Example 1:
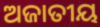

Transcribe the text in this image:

ଅଜାତୀୟ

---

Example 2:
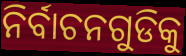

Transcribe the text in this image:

ନିର୍ବାଚନଗୁଡିକୁ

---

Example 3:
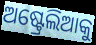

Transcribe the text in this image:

ଅଷ୍ଟ୍ରେଲିଆକୁ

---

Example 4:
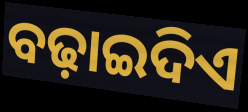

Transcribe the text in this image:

ବଢ଼ାଇଦିଏ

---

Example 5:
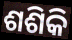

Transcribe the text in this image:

ଶଶିକି